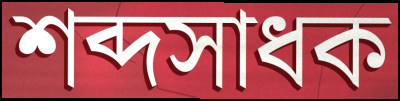
শব্দসাধক